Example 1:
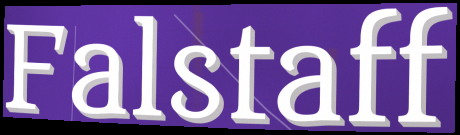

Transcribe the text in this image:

Falstaff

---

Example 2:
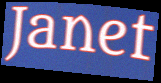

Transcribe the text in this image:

Janet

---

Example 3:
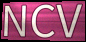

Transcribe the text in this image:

NCV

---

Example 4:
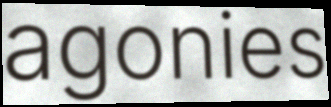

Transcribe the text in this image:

agonies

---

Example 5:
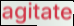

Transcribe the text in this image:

agitate